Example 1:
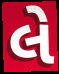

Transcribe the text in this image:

લે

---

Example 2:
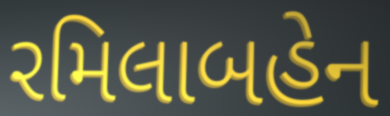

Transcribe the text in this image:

રમિલાબહેન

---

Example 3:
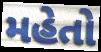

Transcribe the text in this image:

મહેતો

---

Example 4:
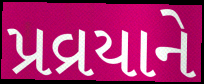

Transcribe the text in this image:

પ્રવ્રયાને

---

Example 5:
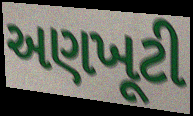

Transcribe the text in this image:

અણખૂટી